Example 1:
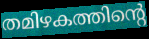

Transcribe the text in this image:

തമിഴകത്തിന്റെ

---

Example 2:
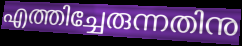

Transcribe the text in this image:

എത്തിച്ചേരുന്നതിനു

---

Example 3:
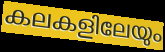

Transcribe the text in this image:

കലകളിലേയും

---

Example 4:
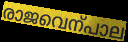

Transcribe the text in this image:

രാജവെന്പാല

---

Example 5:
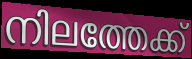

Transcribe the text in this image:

നിലത്തേക്ക്